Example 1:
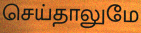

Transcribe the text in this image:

செய்தாலுமே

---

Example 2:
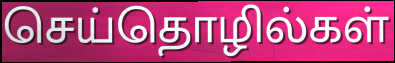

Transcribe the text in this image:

செய்தொழில்கள்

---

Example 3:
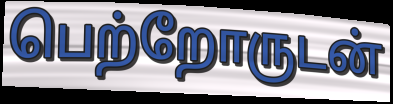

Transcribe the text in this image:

பெற்றோருடன்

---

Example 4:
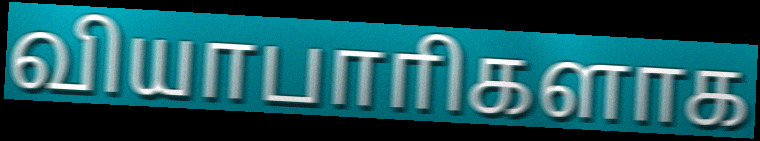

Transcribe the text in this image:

வியாபாரிகளாக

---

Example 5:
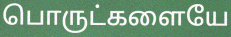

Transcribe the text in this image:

பொருட்களையே